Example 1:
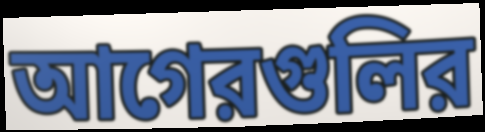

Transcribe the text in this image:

আগেরগুলির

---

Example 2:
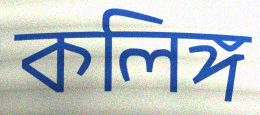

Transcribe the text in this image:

কলিঙ্গ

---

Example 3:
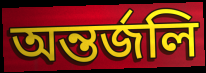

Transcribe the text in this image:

অন্তর্জলি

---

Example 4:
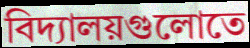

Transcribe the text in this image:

বিদ্যালয়গুলোতে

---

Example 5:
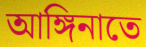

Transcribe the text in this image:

আঙ্গিনাতে